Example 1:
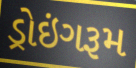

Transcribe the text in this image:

ડ્રોઇંગરૂમ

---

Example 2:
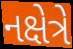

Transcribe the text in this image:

નક્ષેત્રે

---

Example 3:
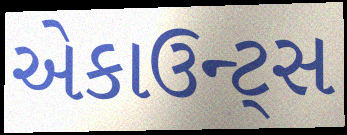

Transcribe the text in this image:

એકાઉન્ટ્સ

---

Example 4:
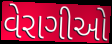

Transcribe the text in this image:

વેરાગીઓ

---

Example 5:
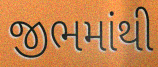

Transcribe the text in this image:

જીભમાંથી